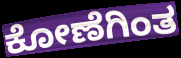
ಕೋಣೆಗಿಂತ